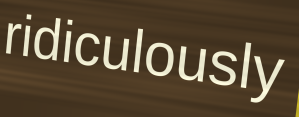
ridiculously